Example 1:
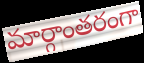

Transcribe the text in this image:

మార్గాంతరంగా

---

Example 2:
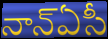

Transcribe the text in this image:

నాన్ఏసీ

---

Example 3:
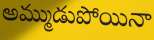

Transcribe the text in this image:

అమ్ముడుపోయినా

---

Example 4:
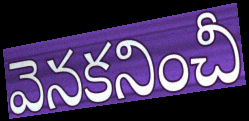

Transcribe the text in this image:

వెనకనించీ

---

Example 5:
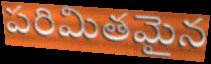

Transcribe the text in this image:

పరిమితమైన